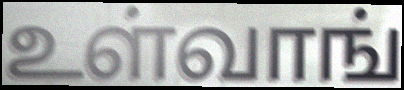
உள்வாங்